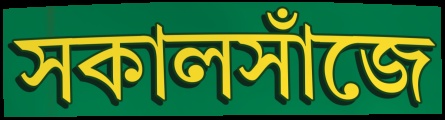
সকালসাঁজে